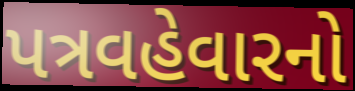
પત્રવહેવારનો